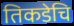
तिकडेचि